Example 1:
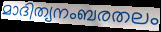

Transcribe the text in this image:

മാദിത്യനംബരതലം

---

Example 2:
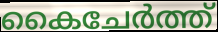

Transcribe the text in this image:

കൈചേർത്ത്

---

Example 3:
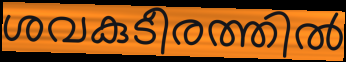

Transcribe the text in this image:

ശവകുടീരത്തിൽ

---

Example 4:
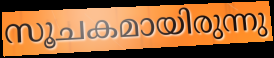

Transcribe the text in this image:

സൂചകമായിരുന്നു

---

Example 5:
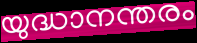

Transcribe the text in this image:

യുദ്ധാനന്തരം